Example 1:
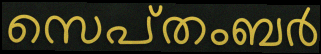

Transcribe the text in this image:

സെപ്‌തംബർ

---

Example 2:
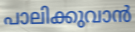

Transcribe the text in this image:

പാലിക്കുവാൻ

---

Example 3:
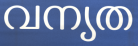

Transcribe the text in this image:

വന്യത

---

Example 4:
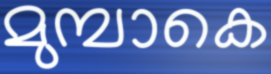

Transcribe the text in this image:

മുമ്പാകെ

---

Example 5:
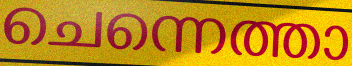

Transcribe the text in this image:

ചെന്നെത്താ